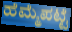
ಹೆಮ್ಮೆಪಟ್ಟೆ